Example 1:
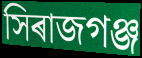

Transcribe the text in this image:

সিৰাজগঞ্জ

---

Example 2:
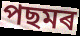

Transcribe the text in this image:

পছমৰ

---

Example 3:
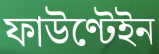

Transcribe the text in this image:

ফাউণ্টেইন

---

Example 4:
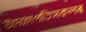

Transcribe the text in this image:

উদ্যোগপতিসকলৰ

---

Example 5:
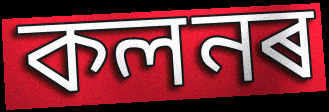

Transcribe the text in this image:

কলনৰ